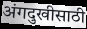
अंगदुखीसाठी